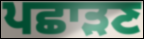
ਪਛਾੜਣ